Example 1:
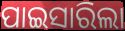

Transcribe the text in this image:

ପାଇସାରିଲା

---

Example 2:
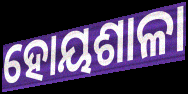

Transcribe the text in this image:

ହୋୟଶାଳା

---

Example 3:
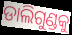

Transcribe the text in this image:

ଡାଲିଗୁଣ୍ଡକୁ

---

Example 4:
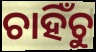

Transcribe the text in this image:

ଚାହିଁଚୁ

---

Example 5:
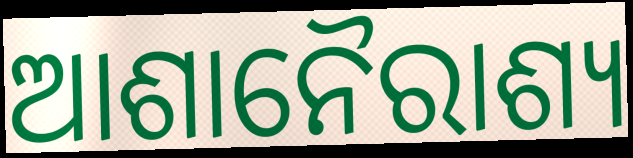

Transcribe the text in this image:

ଆଶାନୈରାଶ୍ୟ